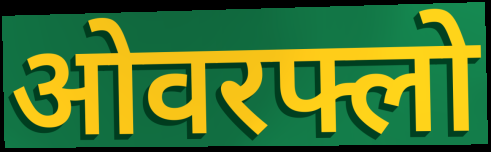
ओवरफ्लो